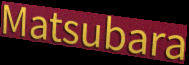
Matsubara